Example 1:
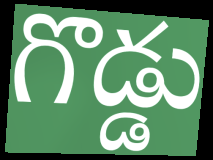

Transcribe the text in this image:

గొడ్డు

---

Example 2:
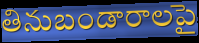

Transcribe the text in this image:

తినుబండారాలపై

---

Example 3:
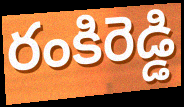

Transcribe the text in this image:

రంకిరెడ్డి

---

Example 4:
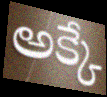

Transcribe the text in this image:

అక్కే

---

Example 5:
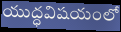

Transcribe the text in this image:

యుద్ధవిషయంలో